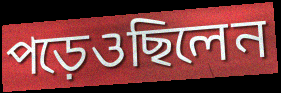
পড়েওছিলেন